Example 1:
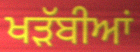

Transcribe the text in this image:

ਖੜੱਬੀਆਂ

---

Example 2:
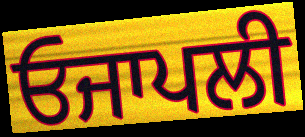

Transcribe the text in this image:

ਓਜਾਪਲੀ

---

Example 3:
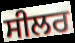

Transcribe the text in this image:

ਸੀਲਰ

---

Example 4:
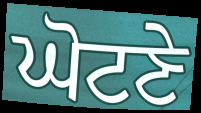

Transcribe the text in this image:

ਘੋਟਣੇ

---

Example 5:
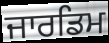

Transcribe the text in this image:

ਜਾਰਡਿਮ